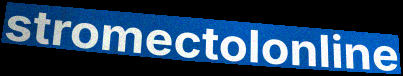
stromectolonline